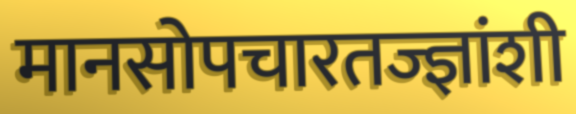
मानसोपचारतज्ज्ञांशी